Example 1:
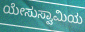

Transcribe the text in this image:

ಯೇಸುಸ್ವಾಮಿಯ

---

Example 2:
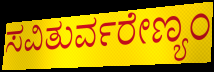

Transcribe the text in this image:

ಸವಿತುರ್ವರೇಣ್ಯಂ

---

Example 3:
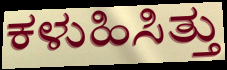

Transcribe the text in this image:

ಕಳುಹಿಸಿತ್ತು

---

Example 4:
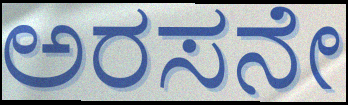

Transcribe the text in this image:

ಅರಸನೇ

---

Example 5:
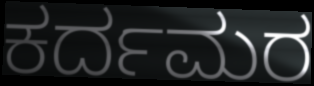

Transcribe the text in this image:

ಕರ್ದಮರ